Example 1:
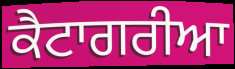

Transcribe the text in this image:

ਕੈਟਾਗਰੀਆ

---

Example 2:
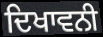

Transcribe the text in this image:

ਦਿਖਾਵਨੀ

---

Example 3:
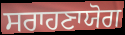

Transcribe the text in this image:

ਸਰਾਹਣਾਯੋਗ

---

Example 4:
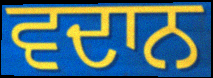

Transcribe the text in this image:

ਵਦਾਨ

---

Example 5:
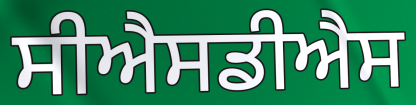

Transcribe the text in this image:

ਸੀਐਸਡੀਐਸ